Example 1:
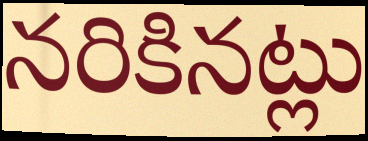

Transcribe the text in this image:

నరికినట్లు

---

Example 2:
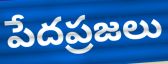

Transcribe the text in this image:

పేదప్రజలు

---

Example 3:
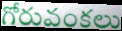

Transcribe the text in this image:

గోరువంకలు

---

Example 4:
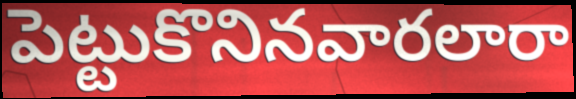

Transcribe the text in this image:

పెట్టుకొనినవారలారా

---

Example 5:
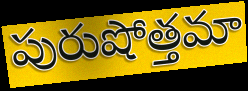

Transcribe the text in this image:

పురుషోత్తమా